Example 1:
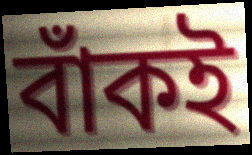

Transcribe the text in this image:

বাঁকই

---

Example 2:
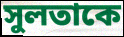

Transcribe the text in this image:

সুলতাকে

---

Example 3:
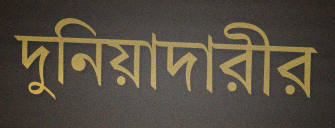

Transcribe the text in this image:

দুনিয়াদারীর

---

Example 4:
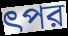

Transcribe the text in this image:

ৎপর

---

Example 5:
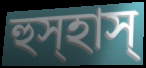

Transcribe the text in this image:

হুস্হাস্